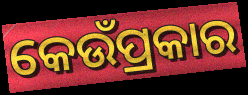
କେଉଁପ୍ରକାର